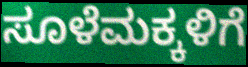
ಸೂಳೆಮಕ್ಕಳಿಗೆ